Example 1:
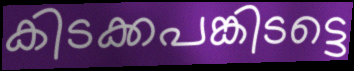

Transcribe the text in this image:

കിടക്കപങ്കിടട്ടെ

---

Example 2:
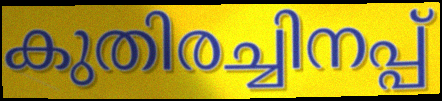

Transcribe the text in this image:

കുതിരച്ചിനപ്പ്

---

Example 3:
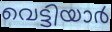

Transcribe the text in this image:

വെട്ടിയാർ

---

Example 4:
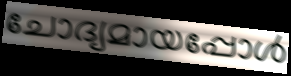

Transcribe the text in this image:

ചോദ്യമായപ്പോൾ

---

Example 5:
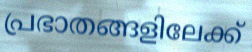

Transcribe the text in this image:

പ്രഭാതങ്ങളിലേക്ക്